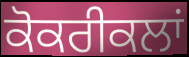
ਕੋਕਰੀਕਲਾਂ